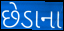
છેડાના